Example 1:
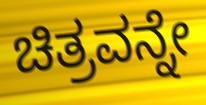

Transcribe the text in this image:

ಚಿತ್ರವನ್ನೇ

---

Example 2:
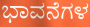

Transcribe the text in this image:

ಭಾವನೆಗಳ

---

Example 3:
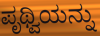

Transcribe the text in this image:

ಪೃಥ್ವಿಯನ್ನು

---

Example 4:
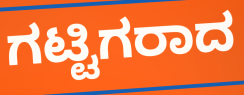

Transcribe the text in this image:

ಗಟ್ಟಿಗರಾದ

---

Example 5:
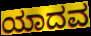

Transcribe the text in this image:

ಯಾದವ